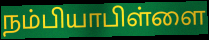
நம்பியாபிள்ளை